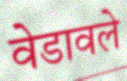
वेडावले